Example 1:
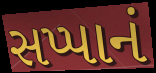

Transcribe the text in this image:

સપ્પાનં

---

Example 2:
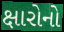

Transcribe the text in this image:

ક્ષારોનો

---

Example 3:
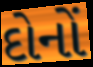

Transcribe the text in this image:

દોનોં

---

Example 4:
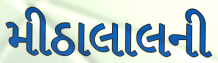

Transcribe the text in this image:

મીઠાલાલની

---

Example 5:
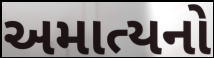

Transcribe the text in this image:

અમાત્યનો